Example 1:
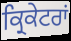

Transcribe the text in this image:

ਕ੍ਰਿਕੇਟਰਾਂ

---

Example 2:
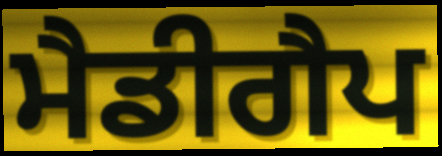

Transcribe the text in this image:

ਮੈਡੀਗੈਪ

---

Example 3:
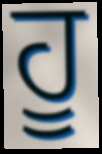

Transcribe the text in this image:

ਹੂ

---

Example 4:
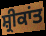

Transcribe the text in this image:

ਸ਼੍ਰੀਕਾਂਤ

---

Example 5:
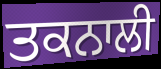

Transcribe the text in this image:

ਤਕਨਾਲੀ